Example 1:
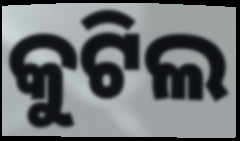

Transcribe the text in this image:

କୁଟିଲ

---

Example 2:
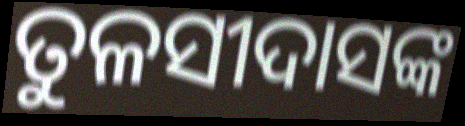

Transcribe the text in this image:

ତୁଳସୀଦାସଙ୍କ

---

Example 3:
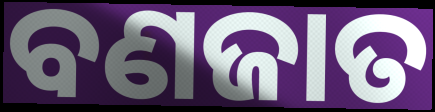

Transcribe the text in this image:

ବଣଜାତ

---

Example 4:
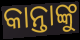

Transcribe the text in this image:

କାନ୍ତାଙ୍କୁ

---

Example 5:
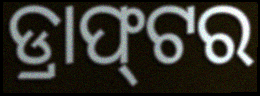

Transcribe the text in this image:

ଡ୍ରାଫ୍‌ଟର